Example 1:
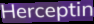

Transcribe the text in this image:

Herceptin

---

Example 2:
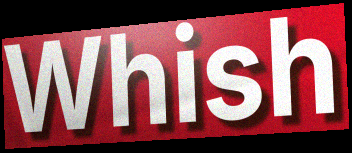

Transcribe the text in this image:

Whish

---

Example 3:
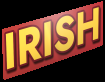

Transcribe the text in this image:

IRISH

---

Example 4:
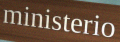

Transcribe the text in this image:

ministerio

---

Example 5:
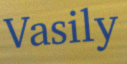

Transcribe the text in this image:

Vasily